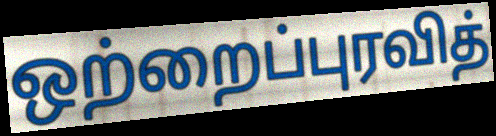
ஒற்றைப்புரவித்